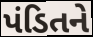
પંડિતને